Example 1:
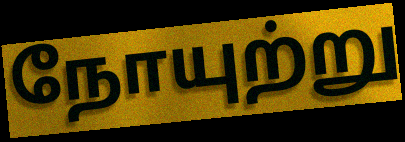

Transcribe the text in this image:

நோயுற்று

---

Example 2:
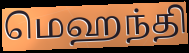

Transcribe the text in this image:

மெஹந்தி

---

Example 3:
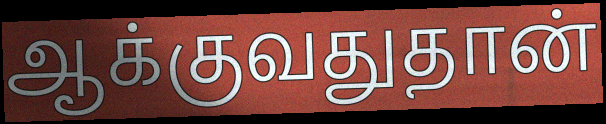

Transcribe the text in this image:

ஆக்குவதுதான்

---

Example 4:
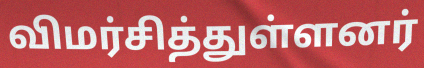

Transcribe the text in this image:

விமர்சித்துள்ளனர்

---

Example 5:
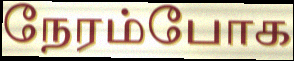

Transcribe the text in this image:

நேரம்போக